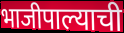
भाजीपाल्याची